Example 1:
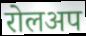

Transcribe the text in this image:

रोलअप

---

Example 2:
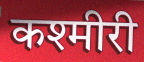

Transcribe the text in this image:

कश्मीरी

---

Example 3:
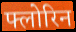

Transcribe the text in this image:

फ्लोरिन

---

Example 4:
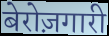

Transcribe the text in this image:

बेरोज़गारी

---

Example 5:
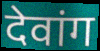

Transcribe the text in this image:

देवांग